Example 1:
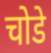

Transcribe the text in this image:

चोडे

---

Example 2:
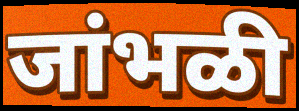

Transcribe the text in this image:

जांभळी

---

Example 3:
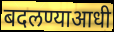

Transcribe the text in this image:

बदलण्याआधी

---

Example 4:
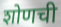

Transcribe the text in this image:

शोणची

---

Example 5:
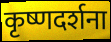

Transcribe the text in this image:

कृष्णदर्शना